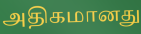
அதிகமானது